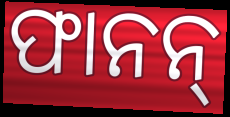
ଫାନନ୍